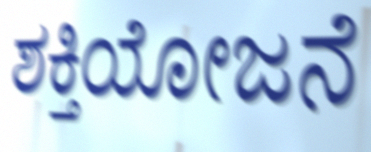
ಶಕ್ತಿಯೋಜನೆ